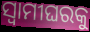
ସ୍ୱାମୀଘରକୁ